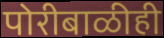
पोरीबाळीही